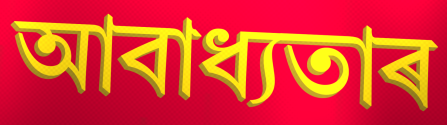
আবাধ্যতাৰ